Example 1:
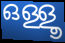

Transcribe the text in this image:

ഒള്ളൂ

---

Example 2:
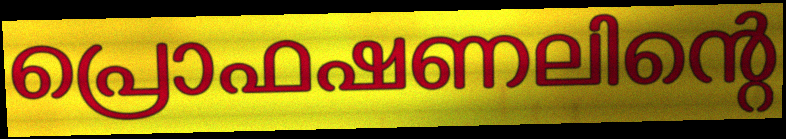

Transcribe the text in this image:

പ്രൊഫഷണലിന്റെ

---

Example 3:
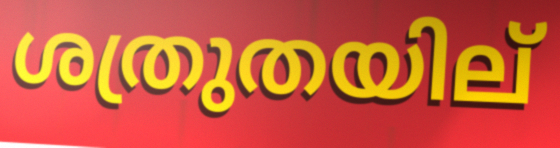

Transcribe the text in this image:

ശത്രുതയില്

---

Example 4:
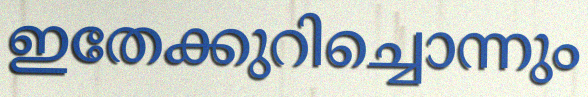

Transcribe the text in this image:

ഇതേക്കുറിച്ചൊന്നും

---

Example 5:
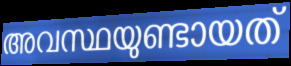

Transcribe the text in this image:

അവസ്ഥയുണ്ടായത്